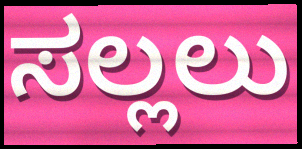
ಸಲ್ಲಲು